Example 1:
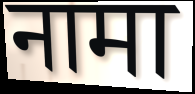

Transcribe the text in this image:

नामा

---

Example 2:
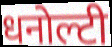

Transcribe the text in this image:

धनोल्‍टी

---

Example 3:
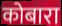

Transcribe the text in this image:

कोबारा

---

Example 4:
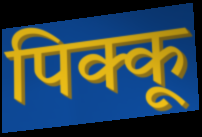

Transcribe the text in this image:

पिक्कू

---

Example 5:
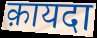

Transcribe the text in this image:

क़ायदा